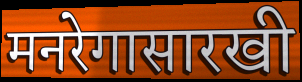
मनरेगासारखी